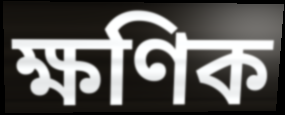
ক্ষণিক